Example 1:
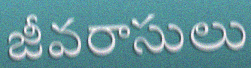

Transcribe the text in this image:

జీవరాసులు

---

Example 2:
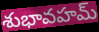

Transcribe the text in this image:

శుభావహమ్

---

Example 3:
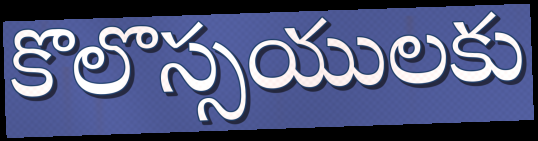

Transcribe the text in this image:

కొలొస్సయులకు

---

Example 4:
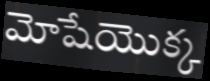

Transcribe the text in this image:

మోషేయొక్క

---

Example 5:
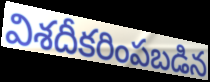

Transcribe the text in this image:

విశదీకరింపబడిన